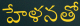
హేళనతో